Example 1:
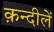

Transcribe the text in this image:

क़न्दीलें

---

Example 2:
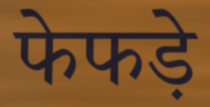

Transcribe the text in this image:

फेफड़े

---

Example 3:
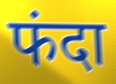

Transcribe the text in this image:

फंदा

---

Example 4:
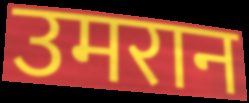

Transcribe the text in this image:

उमरान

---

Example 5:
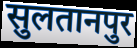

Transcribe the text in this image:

सुलतानपुर